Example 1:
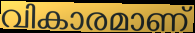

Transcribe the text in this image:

വികാരമാണ്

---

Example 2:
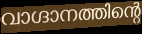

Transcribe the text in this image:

വാഗ്ദാനത്തിന്റെ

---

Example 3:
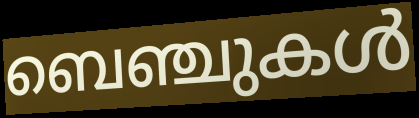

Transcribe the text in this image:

ബെഞ്ചുകൾ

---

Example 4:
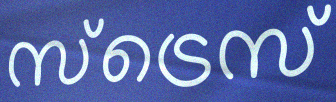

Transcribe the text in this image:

സ്ട്രെസ്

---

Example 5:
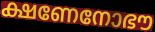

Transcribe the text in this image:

ക്ഷണേനോഭൗ